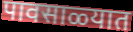
पावसाळ्यात